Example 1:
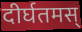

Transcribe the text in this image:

दीर्घतमस्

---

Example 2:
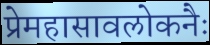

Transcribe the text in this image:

प्रेमहासावलोकनैः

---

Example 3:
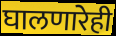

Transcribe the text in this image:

घालणारेही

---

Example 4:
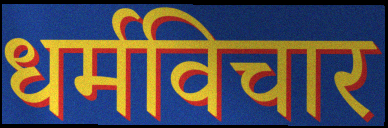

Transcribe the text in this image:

धर्मविचार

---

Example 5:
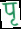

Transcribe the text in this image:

पृ